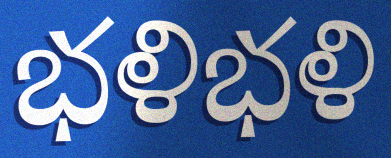
భళిభళి